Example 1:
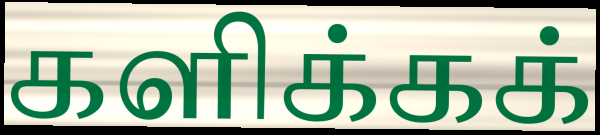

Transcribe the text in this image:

களிக்கக்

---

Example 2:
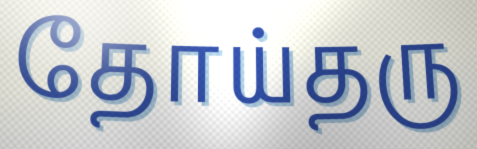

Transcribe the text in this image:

தோய்தரு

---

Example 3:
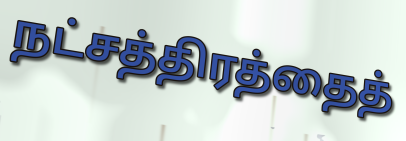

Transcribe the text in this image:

நட்சத்திரத்தைத்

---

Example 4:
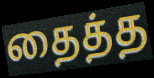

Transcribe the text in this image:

தைத்த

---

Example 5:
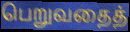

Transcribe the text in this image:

பெறுவதைத்